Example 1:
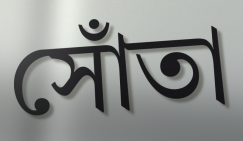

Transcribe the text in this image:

সোঁতা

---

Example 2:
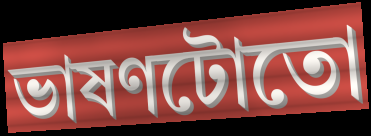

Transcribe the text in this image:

ভাষণটোতো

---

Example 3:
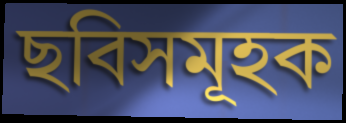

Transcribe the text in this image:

ছবিসমূহক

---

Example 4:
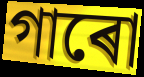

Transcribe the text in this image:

গাৰো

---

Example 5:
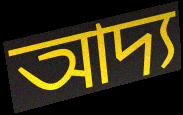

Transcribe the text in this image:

আদ্য